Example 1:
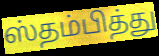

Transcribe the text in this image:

ஸ்தம்பித்து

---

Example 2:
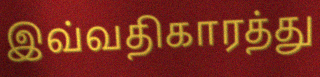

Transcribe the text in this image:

இவ்வதிகாரத்து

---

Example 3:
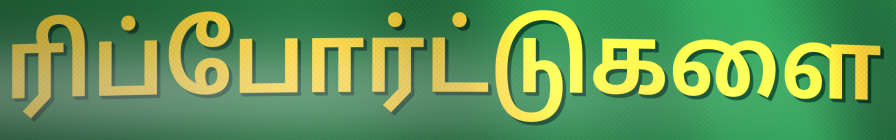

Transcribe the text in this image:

ரிப்போர்ட்டுகளை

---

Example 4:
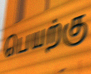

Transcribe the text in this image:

பெயற்கு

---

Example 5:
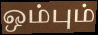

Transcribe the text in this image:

ஒம்பும்